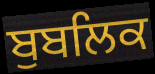
ਬੁਬਲਿਕ